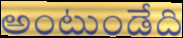
అంటుండేది